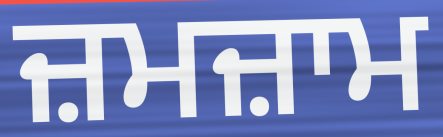
ਜ਼ਮਜ਼ਾਮ